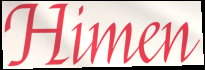
Himen